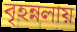
বৃহন্নলায়